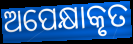
ଅପେକ୍ଷାକୃତ